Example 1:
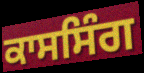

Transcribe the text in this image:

ਕਾਸਸਿੰਗ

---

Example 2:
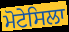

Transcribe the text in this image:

ਮੋਟੇਸਿਲਾ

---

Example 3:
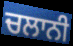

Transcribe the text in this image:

ਚਲਾਨੀ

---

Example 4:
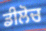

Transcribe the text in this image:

ਡੀਲੋਚ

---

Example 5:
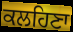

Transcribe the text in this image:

ਕਲਹਿਣਾ